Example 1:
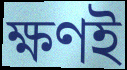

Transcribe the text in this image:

ক্ষণই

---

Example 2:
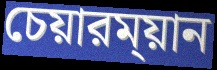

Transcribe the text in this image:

চেয়ারম্য়ান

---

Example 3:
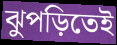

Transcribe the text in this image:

ঝুপড়িতেই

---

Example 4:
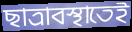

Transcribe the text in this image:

ছাত্রাবস্থাতেই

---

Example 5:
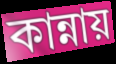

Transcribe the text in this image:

কান্নায়